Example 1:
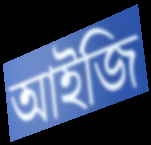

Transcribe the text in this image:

আইজি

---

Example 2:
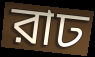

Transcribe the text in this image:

রাঢ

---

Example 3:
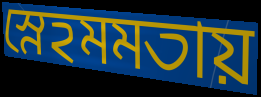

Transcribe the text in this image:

স্নেহমমতায়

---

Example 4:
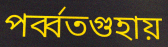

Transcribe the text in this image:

পর্ব্বতগুহায়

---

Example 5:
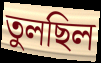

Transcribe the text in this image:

তুলছিল